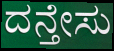
ದನ್ತೇಸು